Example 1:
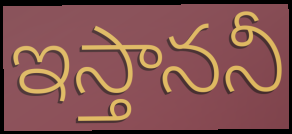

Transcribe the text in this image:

ఇస్తాననీ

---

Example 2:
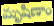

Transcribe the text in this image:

మృషీణాం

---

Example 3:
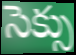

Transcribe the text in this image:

సెక్సు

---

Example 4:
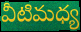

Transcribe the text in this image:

వీటిమధ్య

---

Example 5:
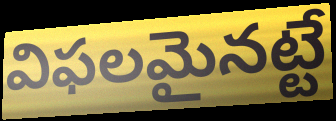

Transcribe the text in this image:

విఫలమైనట్టే